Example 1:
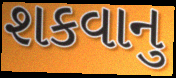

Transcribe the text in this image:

શકવાનુ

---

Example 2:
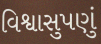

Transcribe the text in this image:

વિશ્વાસુપણું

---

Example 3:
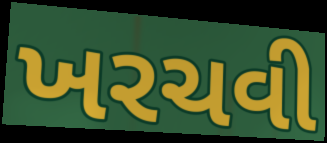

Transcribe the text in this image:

ખરચવી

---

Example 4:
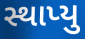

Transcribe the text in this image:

સ્થાપ્યુ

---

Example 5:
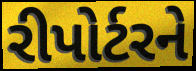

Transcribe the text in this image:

રીપોર્ટરને